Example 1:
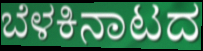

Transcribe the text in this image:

ಬೆಳಕಿನಾಟದ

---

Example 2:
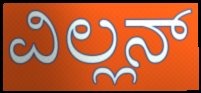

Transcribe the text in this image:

ವಿಲ್ಲನ್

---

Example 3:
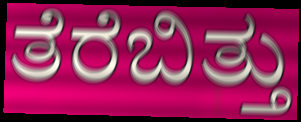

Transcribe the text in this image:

ತೆರೆಬಿತ್ತು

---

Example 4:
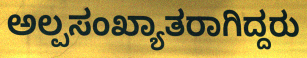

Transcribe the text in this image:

ಅಲ್ಪಸಂಖ್ಯಾತರಾಗಿದ್ದರು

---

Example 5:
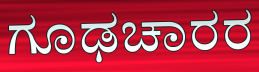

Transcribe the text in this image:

ಗೂಢಚಾರರ